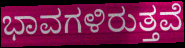
ಭಾವಗಳಿರುತ್ತವೆ